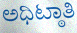
ಅಧಿಟ್ಠಾತಿ